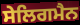
ਸੇਲਿਗਮੈਨ